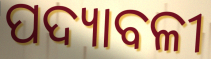
ପଦ୍ୟାବଳୀ